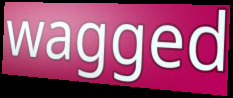
wagged